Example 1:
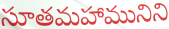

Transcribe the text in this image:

సూతమహామునిని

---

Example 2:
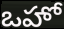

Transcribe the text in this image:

ఒహో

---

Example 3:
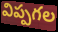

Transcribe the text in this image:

విప్పగల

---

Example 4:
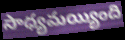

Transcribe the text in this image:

సాధ్యమయ్యింది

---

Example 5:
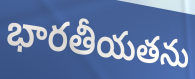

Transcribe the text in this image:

భారతీయతను